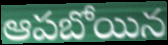
ఆపబోయిన